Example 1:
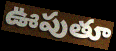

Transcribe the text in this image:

ఊపుతూ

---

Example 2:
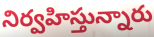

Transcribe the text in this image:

నిర్వహిస్తున్నారు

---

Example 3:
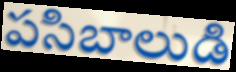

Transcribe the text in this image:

పసిబాలుడి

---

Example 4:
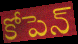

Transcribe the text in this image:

కోపెన్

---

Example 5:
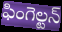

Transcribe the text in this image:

ఫింగెల్టన్